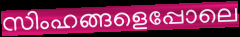
സിംഹങ്ങളെപ്പോലെ